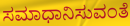
ಸಮಾಧಾನಿಸುವಂತೆ